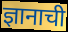
ज्ञानाची